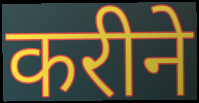
करीने